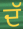
ਦੱ